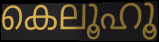
കെലൂഹൂ